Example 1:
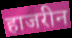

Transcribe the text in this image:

हाजरीन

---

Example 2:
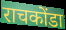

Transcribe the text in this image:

राचकोंडा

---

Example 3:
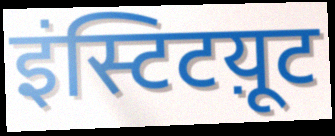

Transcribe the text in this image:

इंस्टिटय़ूट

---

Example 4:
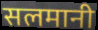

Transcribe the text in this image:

सलमानी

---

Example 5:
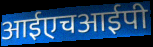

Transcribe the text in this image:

आईएचआईपी